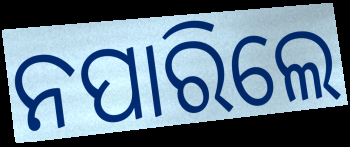
ନପାରିଲେ